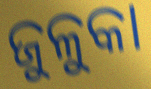
ଜୁଳୁକା